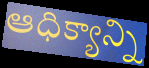
ఆధిక్యాన్ని